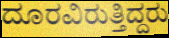
ದೂರವಿರುತ್ತಿದ್ದರು